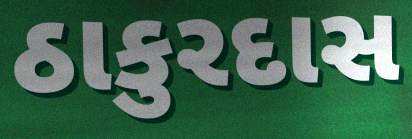
ઠાકુરદાસ